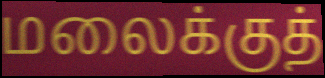
மலைக்குத்